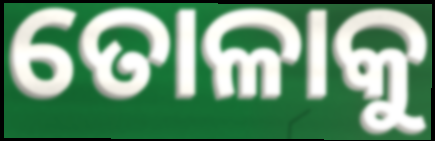
ତୋଳାକୁ